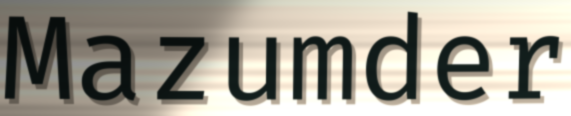
Mazumder